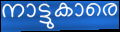
നാട്ടുകാരെ